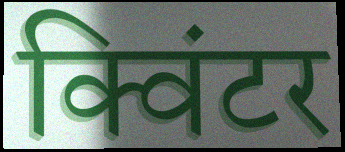
क्विंटर